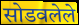
सोडवलेले